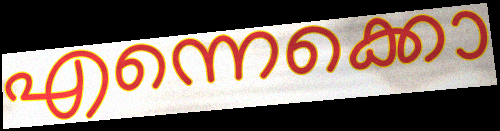
എന്നെക്കൊ